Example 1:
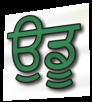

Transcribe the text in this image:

ਉਡੂ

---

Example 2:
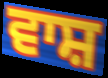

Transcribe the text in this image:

ਵਾਸ਼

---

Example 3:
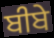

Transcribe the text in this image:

ਬੀਬੇ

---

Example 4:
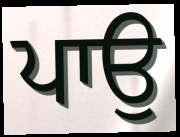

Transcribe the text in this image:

ਪਾਉ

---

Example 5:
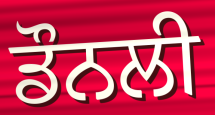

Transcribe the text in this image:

ਡੌਨਲੀ